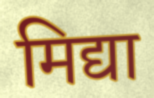
मिद्या